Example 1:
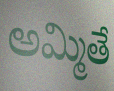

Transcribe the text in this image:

అమ్మితే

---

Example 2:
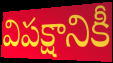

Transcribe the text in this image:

విపక్షానికీ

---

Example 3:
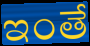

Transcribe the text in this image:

ఇంతే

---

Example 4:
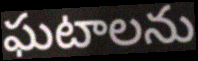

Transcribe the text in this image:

ఘటాలను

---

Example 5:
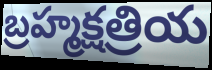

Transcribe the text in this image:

బ్రహ్మక్షత్రియ